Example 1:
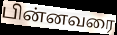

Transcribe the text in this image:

பின்னவரை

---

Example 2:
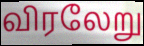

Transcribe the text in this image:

விரலேறு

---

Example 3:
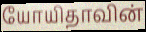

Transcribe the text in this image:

யோயிதாவின்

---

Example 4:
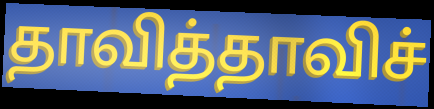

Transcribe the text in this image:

தாவித்தாவிச்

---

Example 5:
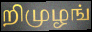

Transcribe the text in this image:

றிமுழங்